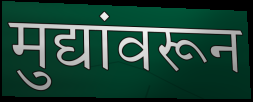
मुद्यांवरून